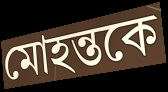
মোহন্তকে